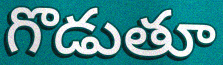
గొడుతూ